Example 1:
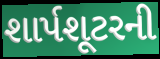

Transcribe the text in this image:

શાર્પશૂટરની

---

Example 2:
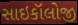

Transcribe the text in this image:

સાઇકૉલોજી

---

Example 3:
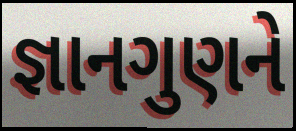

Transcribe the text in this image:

જ્ઞાનગુણને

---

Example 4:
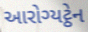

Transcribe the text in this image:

આરોગ્યટ્ઠેન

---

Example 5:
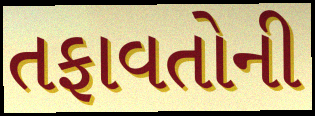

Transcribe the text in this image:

તફાવતોની